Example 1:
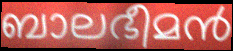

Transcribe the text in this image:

ബാലഭീമൻ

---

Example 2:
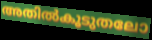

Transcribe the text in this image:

അതിൽകൂടുതലോ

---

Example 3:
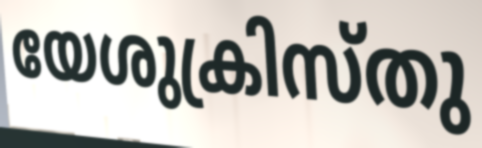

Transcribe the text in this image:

യേശുക്രിസ്തു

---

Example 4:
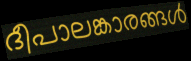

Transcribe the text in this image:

ദീപാലങ്കാരങ്ങൾ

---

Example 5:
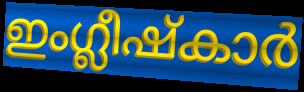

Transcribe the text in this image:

ഇംഗ്ലീഷ്കാർ